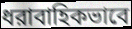
ধরাবাহিকভাবে